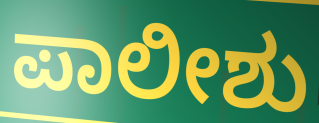
ಪಾಲೀಶು